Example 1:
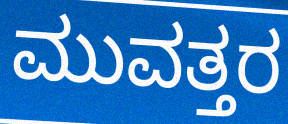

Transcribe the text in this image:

ಮುವತ್ತರ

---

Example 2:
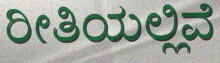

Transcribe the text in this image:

ರೀತಿಯಲ್ಲಿವೆ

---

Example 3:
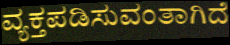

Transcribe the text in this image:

ವ್ಯಕ್ತಪಡಿಸುವಂತಾಗಿದೆ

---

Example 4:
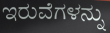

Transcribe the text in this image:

ಇರುವೆಗಳನ್ನು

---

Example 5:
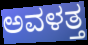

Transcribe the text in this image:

ಅವಳತ್ತ